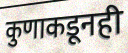
कुणाकडूनही